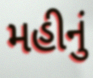
મહીનું